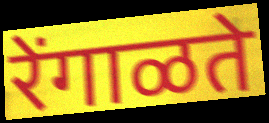
रेंगाळते